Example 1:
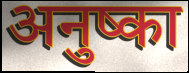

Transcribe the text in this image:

अनुष्का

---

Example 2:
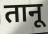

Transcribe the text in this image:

तानू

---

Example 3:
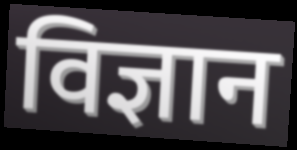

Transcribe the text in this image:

विज्ञान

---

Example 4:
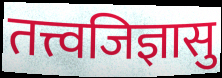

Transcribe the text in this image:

तत्त्वजिज्ञासु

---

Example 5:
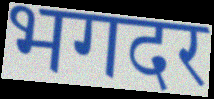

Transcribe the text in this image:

भगदर